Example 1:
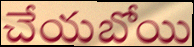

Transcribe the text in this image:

చేయబోయి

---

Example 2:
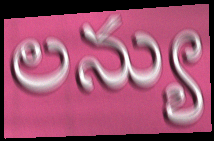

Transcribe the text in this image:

లన్యు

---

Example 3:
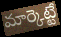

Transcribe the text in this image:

మార్కెట్టే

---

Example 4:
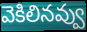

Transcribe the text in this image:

వెకిలినవ్వు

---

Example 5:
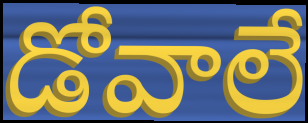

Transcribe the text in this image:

డోవాలే